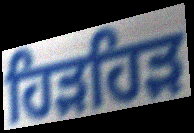
ਹਿੜਹਿੜ